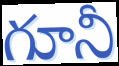
గూనీ